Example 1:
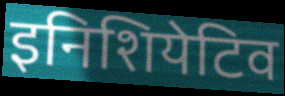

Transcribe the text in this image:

इनिशियेटिव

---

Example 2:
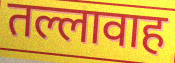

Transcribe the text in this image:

तल्लावाह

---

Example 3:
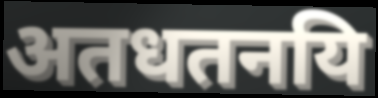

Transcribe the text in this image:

अतधतनयि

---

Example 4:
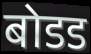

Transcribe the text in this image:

बोडड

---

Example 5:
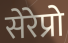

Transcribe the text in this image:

सेरेप्रो